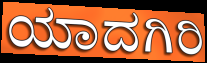
ಯಾದಗಿರಿ